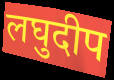
लघुदीप